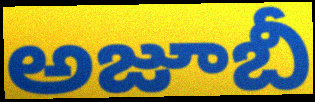
అజూబీ